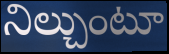
నిల్చుంటూ